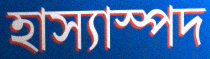
হাস্যাস্পদ